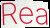
Rea